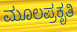
ಮೂಲಪ್ರಕೃತಿ